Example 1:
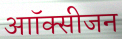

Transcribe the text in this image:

आॉक्सीजन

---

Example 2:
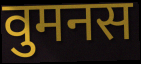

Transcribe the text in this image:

वुमनस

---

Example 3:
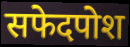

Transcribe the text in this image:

सफेदपोश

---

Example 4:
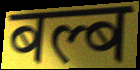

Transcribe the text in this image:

बल्‍ब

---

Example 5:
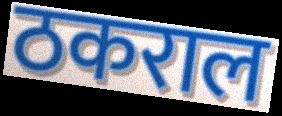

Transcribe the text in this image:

ठकराल